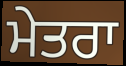
ਮੇਤਰਾ